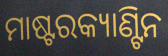
ମାଷ୍ଟରକ୍ୟାଣ୍ଟିନ